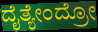
ದೈತ್ಯೇಂದ್ರೋ